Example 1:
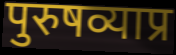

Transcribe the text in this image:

पुरुषव्याप्र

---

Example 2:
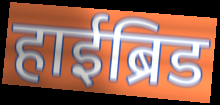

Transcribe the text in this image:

हाईब्रिड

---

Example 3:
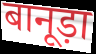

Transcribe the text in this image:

बानूड़ा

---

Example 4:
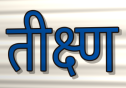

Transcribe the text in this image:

तीक्ष्ण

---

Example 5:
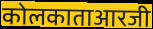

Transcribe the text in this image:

कोलकाताआरजी